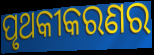
ପୃଥକୀକରଣର